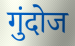
गुंदोज